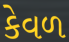
કેવળ